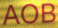
AOB